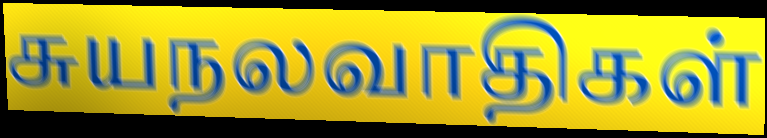
சுயநலவாதிகள்